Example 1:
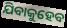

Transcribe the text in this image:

ଯିବାକୁହେବ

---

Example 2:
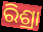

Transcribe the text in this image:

ରିଶ୍ରା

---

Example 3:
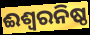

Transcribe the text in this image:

ଈଶ୍ୱରନିଷ୍ଠ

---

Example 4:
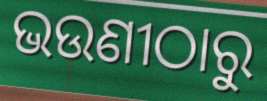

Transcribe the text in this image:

ଭଉଣୀଠାରୁ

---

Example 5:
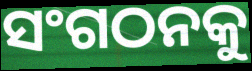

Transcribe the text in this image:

ସଂଗଠନକୁ